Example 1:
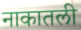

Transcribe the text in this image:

नाकातली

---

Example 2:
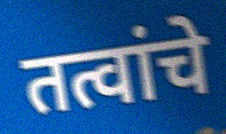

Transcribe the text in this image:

तत्वांचे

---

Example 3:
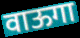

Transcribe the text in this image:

वाऊगा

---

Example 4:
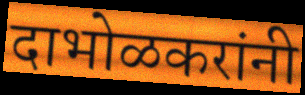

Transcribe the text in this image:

दाभोळकरांनी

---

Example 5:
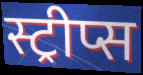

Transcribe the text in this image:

स्ट्रीप्स